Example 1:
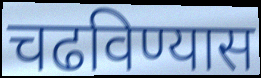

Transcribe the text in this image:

चढविण्यास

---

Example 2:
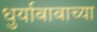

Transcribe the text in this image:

धुर्याबाबाच्या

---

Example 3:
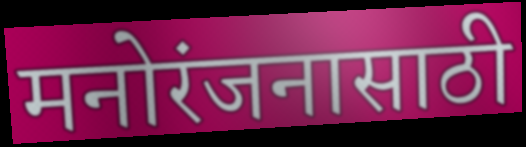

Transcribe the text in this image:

मनोरंजनासाठी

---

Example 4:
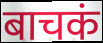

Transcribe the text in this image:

बाचकं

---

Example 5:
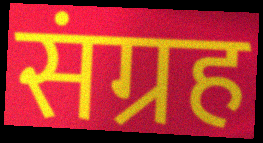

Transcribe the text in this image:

संग्रह